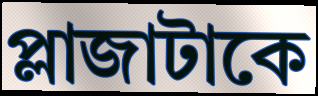
প্লাজাটাকে